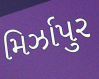
મિર્ઝાપુર